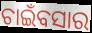
ଚାଇଁବସାର